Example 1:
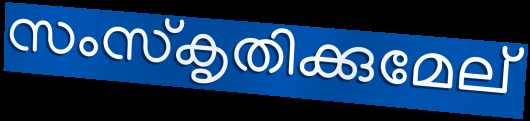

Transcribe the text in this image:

സംസ്കൃതിക്കുമേല്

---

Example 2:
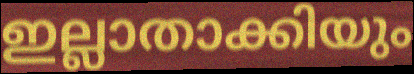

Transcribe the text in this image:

ഇല്ലാതാക്കിയും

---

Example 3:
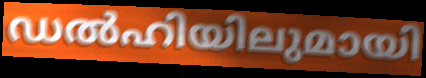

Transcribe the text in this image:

ഡൽഹിയിലുമായി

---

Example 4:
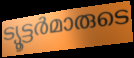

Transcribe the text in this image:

ട്യൂട്ടർമാരുടെ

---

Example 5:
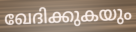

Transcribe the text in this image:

ഖേദിക്കുകയും